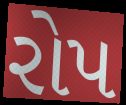
રોપ